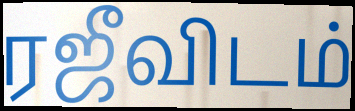
ரஜீவிடம்